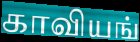
காவியங்